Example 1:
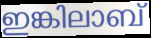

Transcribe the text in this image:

ഇങ്കിലാബ്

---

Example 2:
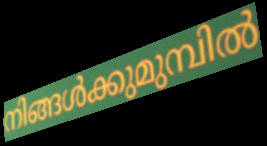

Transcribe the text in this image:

നിങ്ങൾക്കുമുമ്പിൽ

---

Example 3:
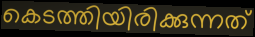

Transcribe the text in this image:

കെടത്തിയിരിക്കുന്നത്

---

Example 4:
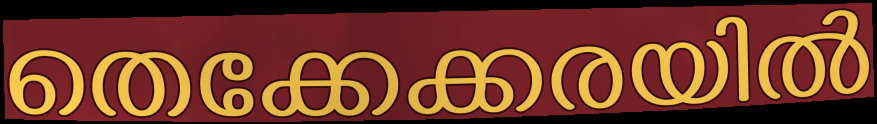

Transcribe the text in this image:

തെക്കേക്കരയിൽ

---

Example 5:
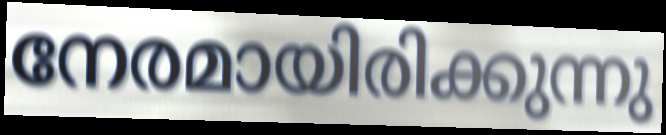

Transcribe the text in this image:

നേരമായിരിക്കുന്നു